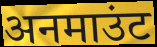
अनमाउंट